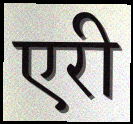
एरी